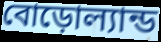
বোড়োল্যান্ড